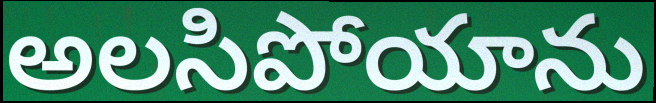
అలసిపోయాను